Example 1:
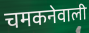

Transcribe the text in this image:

चमकनेवाली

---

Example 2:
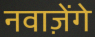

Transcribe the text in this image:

नवाज़ेंगे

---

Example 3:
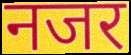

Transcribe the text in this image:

नजर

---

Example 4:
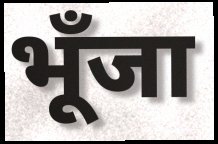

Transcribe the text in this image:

भूँजा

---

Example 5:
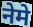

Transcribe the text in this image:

नेमे